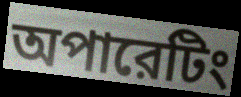
অপারেটিং